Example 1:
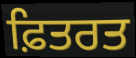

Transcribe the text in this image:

ਫ਼ਿਤਰਤ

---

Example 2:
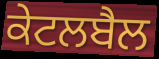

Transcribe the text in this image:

ਕੇਟਲਬੈਲ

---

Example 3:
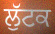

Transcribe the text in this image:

ਲੁੱਟਕ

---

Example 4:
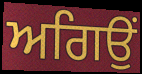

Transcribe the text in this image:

ਅਗਿਉਂ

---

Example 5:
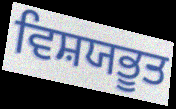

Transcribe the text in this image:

ਵਿਸ਼ਯਭੂਤ